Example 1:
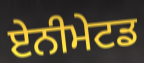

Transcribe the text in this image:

ਏਨੀਮੇਟਡ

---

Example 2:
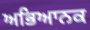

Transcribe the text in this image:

ਅਭਿਆਨਕ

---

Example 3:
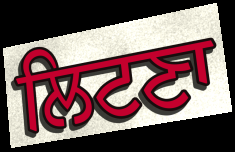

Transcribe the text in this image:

ਲਿਟਣਾ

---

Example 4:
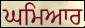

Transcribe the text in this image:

ਘਮਿਆਰ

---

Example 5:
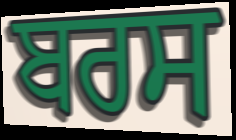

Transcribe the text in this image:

ਬਰਸ